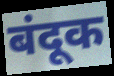
बंदूक